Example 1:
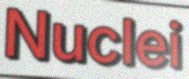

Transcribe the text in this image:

Nuclei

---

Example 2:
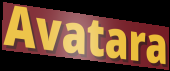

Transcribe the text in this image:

Avatara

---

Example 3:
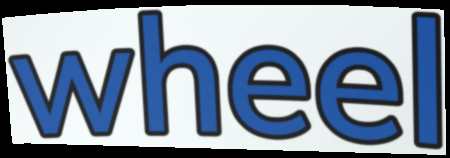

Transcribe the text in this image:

wheel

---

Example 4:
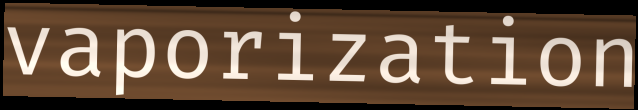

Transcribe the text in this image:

vaporization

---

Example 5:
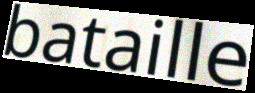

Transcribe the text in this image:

bataille